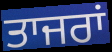
ਤਾਜਰਾਂ